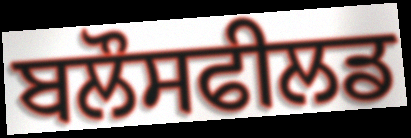
ਬਲੌਸਫੀਲਡ